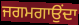
ਜਗਮਗਾਉਂਦਾ